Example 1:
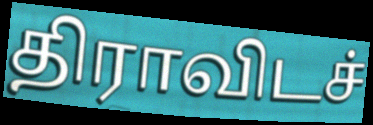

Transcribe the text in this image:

திராவிடச்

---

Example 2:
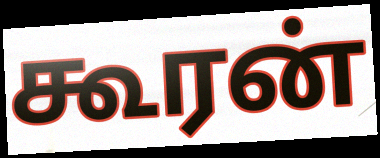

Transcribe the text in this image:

கூரன்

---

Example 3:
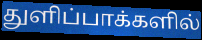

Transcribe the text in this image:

துளிப்பாக்களில்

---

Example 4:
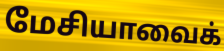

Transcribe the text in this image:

மேசியாவைக்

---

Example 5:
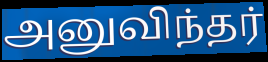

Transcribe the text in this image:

அனுவிந்தர்